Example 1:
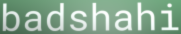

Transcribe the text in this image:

badshahi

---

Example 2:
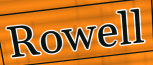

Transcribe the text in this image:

Rowell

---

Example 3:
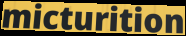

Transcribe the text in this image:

micturition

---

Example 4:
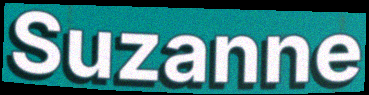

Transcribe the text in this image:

Suzanne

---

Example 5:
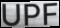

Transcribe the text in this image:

UPF